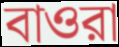
বাওরা